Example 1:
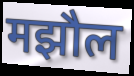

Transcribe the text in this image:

मझौल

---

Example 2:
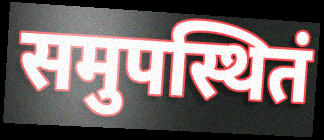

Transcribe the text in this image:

समुपस्थितं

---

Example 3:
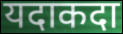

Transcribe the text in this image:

यदाकदा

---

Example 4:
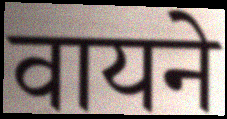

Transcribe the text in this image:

वायने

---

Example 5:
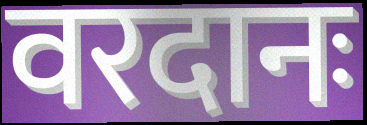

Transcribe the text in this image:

वरदानः